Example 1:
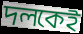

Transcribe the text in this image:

দলকেই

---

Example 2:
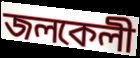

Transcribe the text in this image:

জলকেলী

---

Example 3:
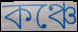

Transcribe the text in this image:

কঞ্চে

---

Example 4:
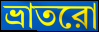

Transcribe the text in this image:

ভ্রাতরো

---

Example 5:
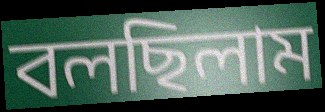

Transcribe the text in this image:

বলছিলাম